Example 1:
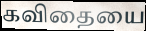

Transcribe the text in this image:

கவிதையை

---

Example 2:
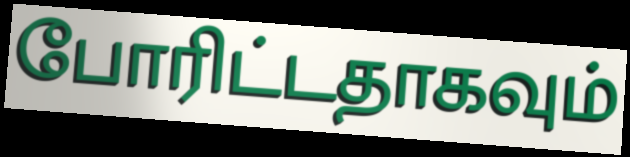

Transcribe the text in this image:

போரிட்டதாகவும்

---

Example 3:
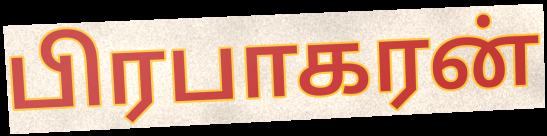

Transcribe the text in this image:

பிரபாகரன்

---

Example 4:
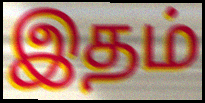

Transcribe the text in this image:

இதம்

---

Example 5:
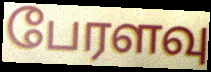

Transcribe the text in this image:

பேரளவு